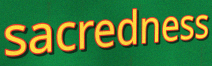
sacredness